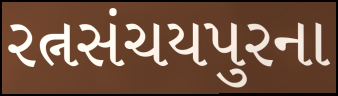
રત્નસંચયપુરના